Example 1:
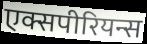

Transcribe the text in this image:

एक्सपीरियन्स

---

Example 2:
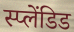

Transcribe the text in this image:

स्प्लेंडिड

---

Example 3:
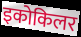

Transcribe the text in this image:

इकोकिलर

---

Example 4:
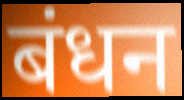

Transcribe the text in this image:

बंधन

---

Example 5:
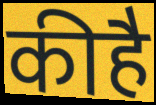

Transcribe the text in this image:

कीहै